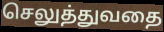
செலுத்துவதை